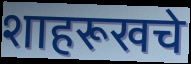
शाहरूखचे